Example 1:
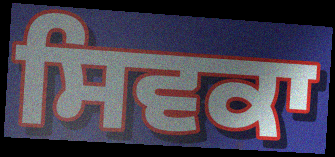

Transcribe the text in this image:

ਸਿਵਕਾ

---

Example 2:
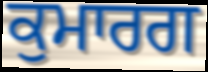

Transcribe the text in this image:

ਕੁਮਾਰਗ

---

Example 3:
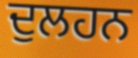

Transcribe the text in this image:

ਦੁਲਹਨ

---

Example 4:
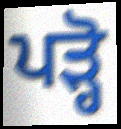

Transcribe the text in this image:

ਪੜ੍ਹੋ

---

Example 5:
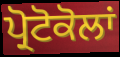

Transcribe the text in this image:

ਪ੍ਰੋਟੋਕੋਲਾਂ